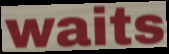
waits